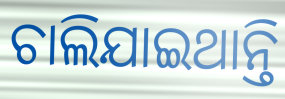
ଚାଲିଯାଇଥାନ୍ତି